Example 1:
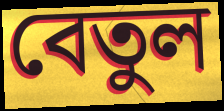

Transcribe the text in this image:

বেতুল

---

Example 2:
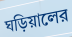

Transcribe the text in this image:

ঘড়িয়ালের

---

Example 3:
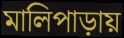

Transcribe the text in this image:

মালিপাড়ায়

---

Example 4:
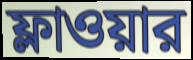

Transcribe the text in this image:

ফ্লাওয়ার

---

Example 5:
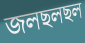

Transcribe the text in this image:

জলছলছল